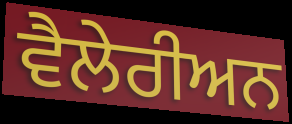
ਵੈਲੇਰੀਅਨ